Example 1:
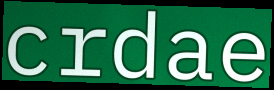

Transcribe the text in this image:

crdae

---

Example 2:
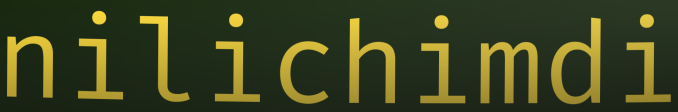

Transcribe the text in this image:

nilichimdi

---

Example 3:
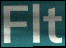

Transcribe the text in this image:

Flt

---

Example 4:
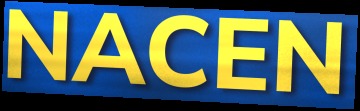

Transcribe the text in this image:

NACEN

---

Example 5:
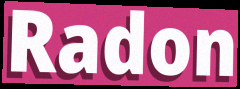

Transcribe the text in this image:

Radon